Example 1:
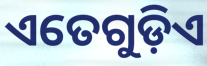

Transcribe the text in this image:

ଏତେଗୁଡ଼ିଏ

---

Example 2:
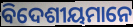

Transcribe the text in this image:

ବିଦେଶୀୟମାନେ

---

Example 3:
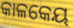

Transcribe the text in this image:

କାଳକେୟ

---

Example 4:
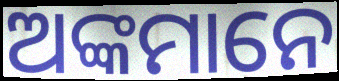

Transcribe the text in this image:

ଅଙ୍କମାନେ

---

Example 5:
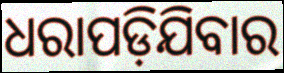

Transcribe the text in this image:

ଧରାପଡ଼ିଯିବାର